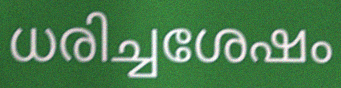
ധരിച്ചശേഷം